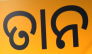
ତାନ